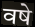
वषे